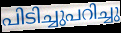
പിടിച്ചുപറിച്ചു